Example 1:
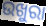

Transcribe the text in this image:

ଉଖୁରା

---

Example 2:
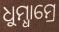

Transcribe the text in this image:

ଧୁମ୍ଧାମ୍ରେ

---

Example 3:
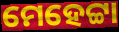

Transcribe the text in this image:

ମେହେଟ୍ଟା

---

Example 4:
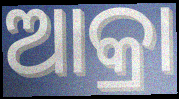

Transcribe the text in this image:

ଆକ୍ରା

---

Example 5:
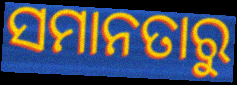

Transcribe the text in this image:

ସମାନତାରୁ